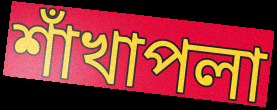
শাঁখাপলা